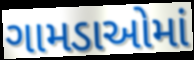
ગામડાઓમાં